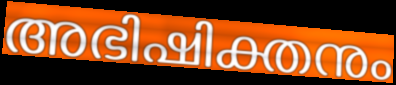
അഭിഷിക്തനും